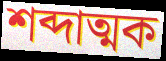
শব্দাত্মক